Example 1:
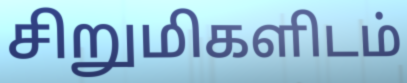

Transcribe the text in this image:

சிறுமிகளிடம்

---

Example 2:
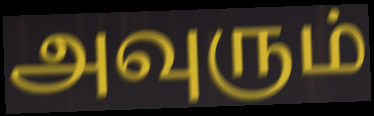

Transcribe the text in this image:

அவுரும்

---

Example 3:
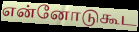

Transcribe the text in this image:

என்னோடுகூட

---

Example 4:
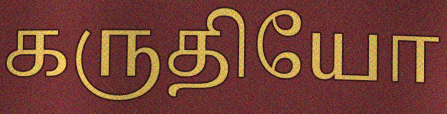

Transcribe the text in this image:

கருதியோ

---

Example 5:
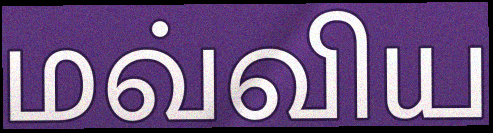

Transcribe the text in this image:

மவ்விய